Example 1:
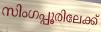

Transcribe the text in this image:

സിംഗപ്പൂരിലേക്ക്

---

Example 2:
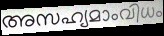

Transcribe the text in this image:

അസഹ്യമാംവിധം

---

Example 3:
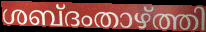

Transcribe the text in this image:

ശബ്ദംതാഴ്ത്തി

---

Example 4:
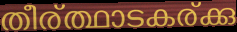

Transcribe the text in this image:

തീര്ത്ഥാടകര്ക്കു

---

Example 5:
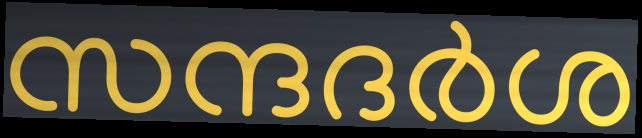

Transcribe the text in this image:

സന്ദദർശ